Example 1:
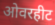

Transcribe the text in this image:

ओवरहीट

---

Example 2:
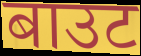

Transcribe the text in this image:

बाउट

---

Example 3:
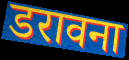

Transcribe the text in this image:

डरावना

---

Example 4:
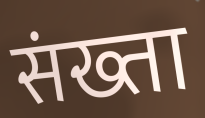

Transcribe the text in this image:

संख्ता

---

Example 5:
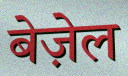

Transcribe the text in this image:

बेज़ेल